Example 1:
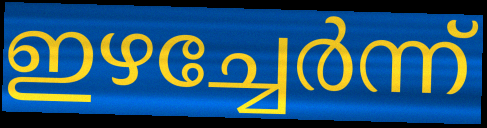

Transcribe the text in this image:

ഇഴച്ചേർന്ന്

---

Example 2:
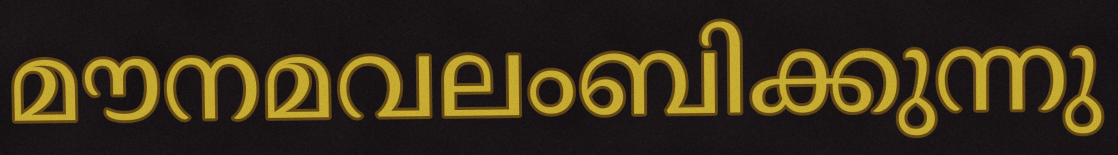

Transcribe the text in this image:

മൗനമവലംബിക്കുന്നു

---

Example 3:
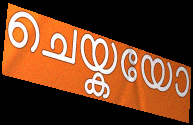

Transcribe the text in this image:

ചെയ്കയോ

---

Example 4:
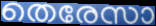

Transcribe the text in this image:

തെരേസാ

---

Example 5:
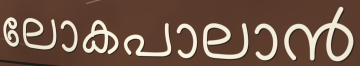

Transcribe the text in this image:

ലോകപാലാൻ